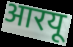
आरयू